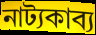
নাট্যকাব্য